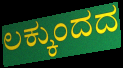
ಲಕ್ಕುಂದದ